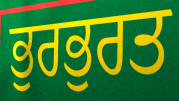
ਭੁਰਭੁਰਤ